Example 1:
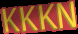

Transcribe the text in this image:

KKKN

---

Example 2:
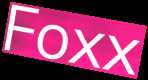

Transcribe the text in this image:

Foxx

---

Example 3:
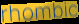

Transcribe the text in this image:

rhombic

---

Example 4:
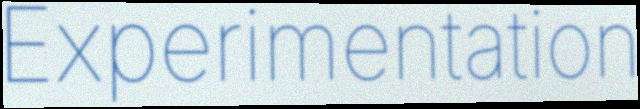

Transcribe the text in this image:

Experimentation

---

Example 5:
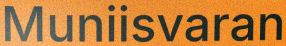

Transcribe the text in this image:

Muniisvaran